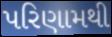
પરિણામથી